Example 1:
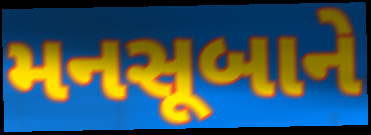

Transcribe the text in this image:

મનસૂબાને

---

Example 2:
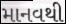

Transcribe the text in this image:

માનવથી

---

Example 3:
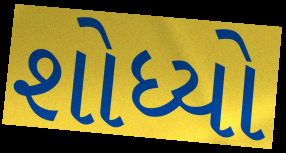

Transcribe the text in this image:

શોધ્યો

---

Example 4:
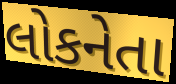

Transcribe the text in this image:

લોકનેતા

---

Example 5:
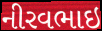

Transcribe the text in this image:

નીરવભાઇ